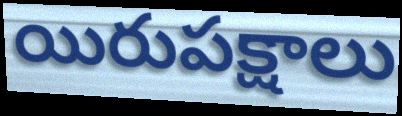
యిరుపక్షాలు